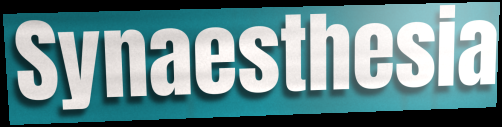
Synaesthesia